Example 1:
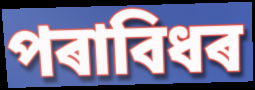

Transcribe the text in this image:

পৰাবিধৰ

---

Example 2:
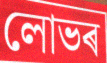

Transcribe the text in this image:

লোভৰ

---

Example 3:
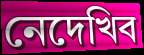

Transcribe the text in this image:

নেদেখিব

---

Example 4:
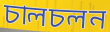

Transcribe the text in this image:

চালচলন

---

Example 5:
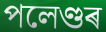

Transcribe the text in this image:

পলেণ্ডৰ